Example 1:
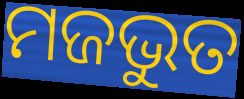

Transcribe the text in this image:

ମଜଭୁତ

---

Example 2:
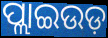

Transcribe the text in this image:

ପ୍ଲାଇଉଡ଼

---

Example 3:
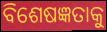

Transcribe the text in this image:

ବିଶେଷଜ୍ଞତାକୁ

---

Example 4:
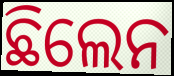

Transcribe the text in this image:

ଛିଲେନ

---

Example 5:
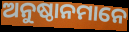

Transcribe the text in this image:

ଅନୁଷ୍ଠାନମାନେ